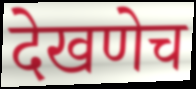
देखणेच